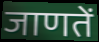
जाणतें